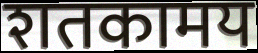
शतकामय